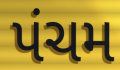
પંચમ